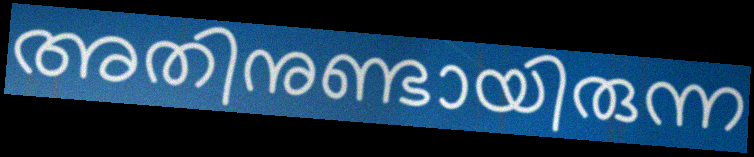
അതിനുണ്ടായിരുന്ന